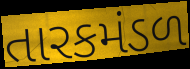
તારકમંડળ